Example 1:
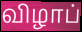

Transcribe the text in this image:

விழாப்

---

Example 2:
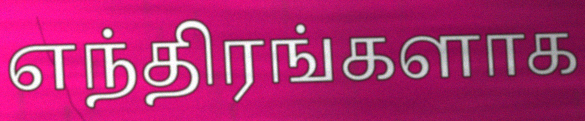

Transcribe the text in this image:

எந்திரங்களாக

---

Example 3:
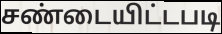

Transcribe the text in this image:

சண்டையிட்டபடி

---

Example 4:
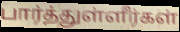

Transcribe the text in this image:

பார்த்துள்ளீர்கள்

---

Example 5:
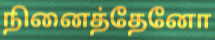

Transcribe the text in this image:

நினைத்தேனோ